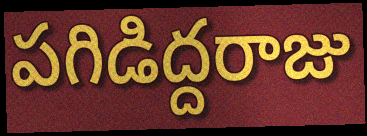
పగిడిద్దరాజు